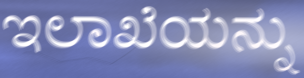
ಇಲಾಖೆಯನ್ನು